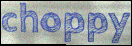
choppy